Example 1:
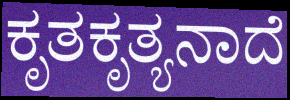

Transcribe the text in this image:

ಕೃತಕೃತ್ಯನಾದೆ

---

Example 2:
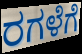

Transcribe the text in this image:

ರಗಳೆಗೆ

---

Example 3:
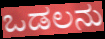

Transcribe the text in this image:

ಒಡಲನು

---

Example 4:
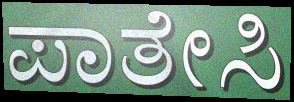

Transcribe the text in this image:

ಪಾತೇಸಿ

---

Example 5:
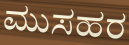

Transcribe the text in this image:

ಮುಸಹರ